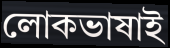
লোকভাষাই